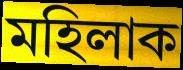
মহিলাক